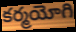
కర్మయోగి